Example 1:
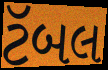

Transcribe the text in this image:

ટૅબલ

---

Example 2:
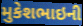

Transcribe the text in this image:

મુકેશભાઇની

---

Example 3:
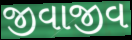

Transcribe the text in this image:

જીવાજીવ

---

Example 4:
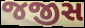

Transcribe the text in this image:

જજીસ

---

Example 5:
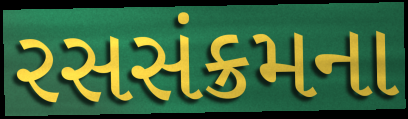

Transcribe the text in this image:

રસસંક્રમના